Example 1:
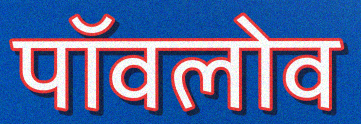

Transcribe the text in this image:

पॉवलोव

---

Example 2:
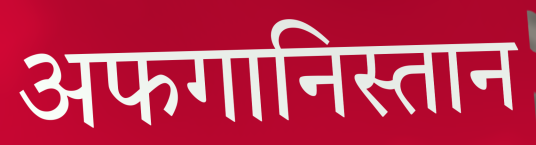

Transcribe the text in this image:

अफगानिस्तान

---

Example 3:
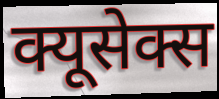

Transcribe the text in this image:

क्यूसेक्स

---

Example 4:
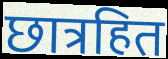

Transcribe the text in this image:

छात्रहित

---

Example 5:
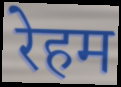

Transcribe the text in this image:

रेहम